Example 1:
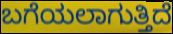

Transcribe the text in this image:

ಬಗೆಯಲಾಗುತ್ತಿದೆ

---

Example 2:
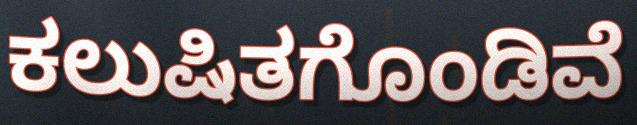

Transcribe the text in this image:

ಕಲುಷಿತಗೊಂಡಿವೆ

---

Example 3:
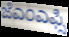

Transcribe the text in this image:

ಜೆಎಂಎಫ್ಸಿ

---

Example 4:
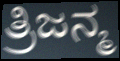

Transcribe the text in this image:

ತ್ರಿಜನ್ಮ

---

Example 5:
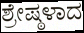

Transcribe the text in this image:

ಶ್ರೇಷ್ಠಳಾದ